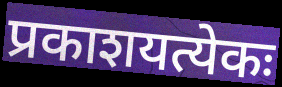
प्रकाशयत्येकः